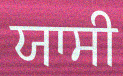
ਯਾਸੀ